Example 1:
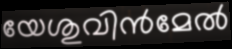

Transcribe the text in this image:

യേശുവിൻമേൽ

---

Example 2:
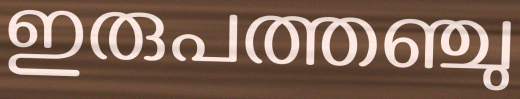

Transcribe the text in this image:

ഇരുപത്തഞ്ചു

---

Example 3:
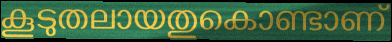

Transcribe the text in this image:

കൂടുതലായതുകൊണ്ടാണ്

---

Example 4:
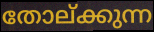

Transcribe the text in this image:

തോല്ക്കുന്ന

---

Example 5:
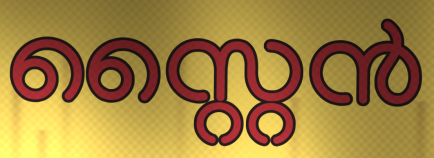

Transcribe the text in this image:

സ്റ്റൈൻ